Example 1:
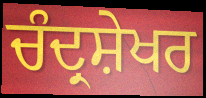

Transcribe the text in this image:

ਚੰਦ੍ਰਸ਼ੇਖਰ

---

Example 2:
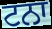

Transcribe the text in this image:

ਟਨਾ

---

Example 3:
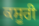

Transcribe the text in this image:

ਕਸੂਰੀ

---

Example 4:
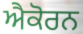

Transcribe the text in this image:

ਐਕੋਰਨ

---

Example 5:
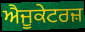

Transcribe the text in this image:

ਐਜੂਕੇਟਰਜ਼